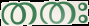
തതഃ